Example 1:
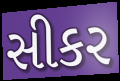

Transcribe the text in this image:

સીકર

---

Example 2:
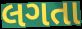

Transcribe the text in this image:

લગતા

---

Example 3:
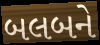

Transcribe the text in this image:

બલબને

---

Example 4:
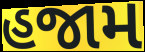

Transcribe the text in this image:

હજામ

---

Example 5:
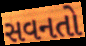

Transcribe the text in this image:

સવનતો